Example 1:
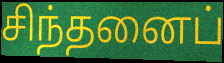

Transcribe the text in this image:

சிந்தனைப்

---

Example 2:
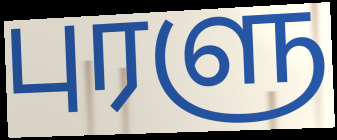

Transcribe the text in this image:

புரளு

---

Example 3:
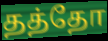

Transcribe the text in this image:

தத்தோ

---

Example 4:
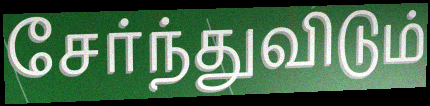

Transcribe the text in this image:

சேர்ந்துவிடும்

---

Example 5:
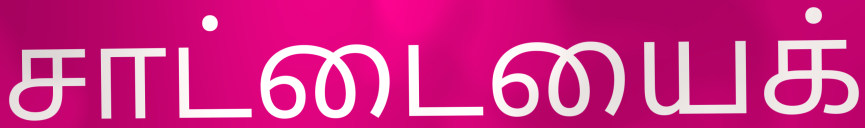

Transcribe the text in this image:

சாட்டையைக்